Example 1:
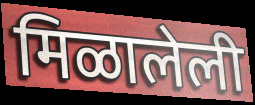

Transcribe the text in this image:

मिळालेली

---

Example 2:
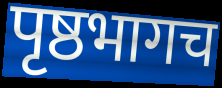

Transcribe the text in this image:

पृष्ठभागच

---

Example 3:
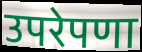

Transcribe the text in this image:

उपरेपणा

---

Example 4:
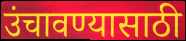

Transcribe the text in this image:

उंचावण्यासाठी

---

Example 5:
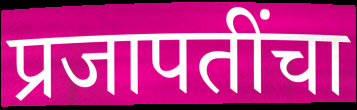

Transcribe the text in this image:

प्रजापतींचा